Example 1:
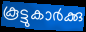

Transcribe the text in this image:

കൂട്ടുകാർക്കു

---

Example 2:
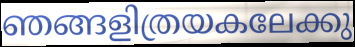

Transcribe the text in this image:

ഞങ്ങളിത്രയകലേക്കു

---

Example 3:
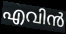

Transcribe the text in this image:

എവിൻ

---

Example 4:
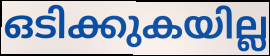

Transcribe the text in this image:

ഒടിക്കുകയില്ല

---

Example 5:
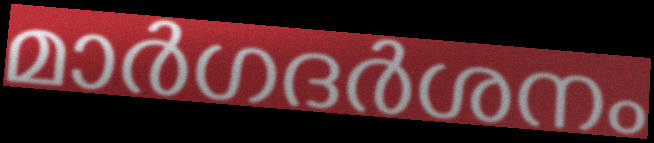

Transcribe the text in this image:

മാർഗദർശനം